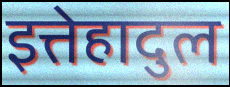
इत्तेहादुल